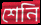
শেনি